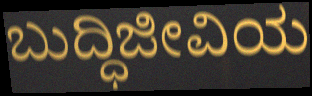
ಬುದ್ಧಿಜೀವಿಯ